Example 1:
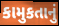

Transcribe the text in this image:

કામુકતાનું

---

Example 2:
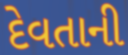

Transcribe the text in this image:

દેવતાની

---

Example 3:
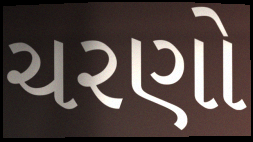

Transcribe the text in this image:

ચરણો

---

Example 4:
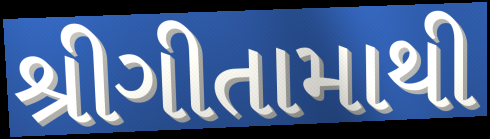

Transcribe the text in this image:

શ્રીગીતામાથી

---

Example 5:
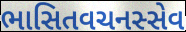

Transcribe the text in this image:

ભાસિતવચનસ્સેવ